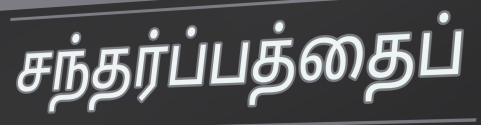
சந்தர்ப்பத்தைப்